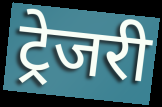
ट्रेजरी